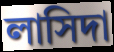
লাসিদা